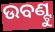
ଉବଣ୍ଟୁ